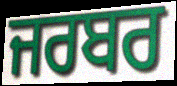
ਜਰਬਰ